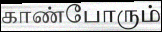
காண்போரும்